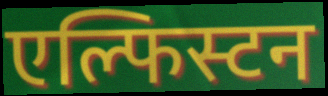
एल्फिस्टन